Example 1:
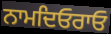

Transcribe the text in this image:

ਨਾਮਦਿਓਰਾਓ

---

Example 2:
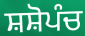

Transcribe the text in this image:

ਸ਼ਸ਼ੋਪੰਚ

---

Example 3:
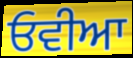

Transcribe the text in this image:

ਓਵੀਆ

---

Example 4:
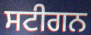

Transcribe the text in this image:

ਸਟੀਗਨ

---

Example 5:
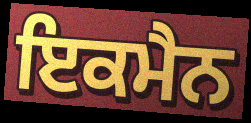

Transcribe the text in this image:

ਇਕਮੈਨ